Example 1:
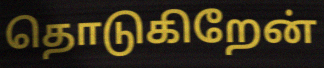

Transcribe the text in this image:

தொடுகிறேன்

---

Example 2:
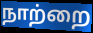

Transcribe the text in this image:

நாற்றை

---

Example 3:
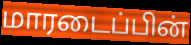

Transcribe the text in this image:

மாரடைப்பின்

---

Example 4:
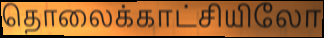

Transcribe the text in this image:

தொலைக்காட்சியிலோ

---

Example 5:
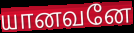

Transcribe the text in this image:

யானவனே